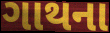
ગાથના